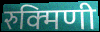
रुक्मिणी